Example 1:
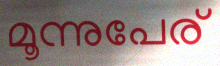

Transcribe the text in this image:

മൂന്നുപേര്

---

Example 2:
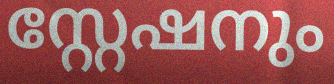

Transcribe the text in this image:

സ്റ്റേഷനും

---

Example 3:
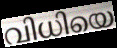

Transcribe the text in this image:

വിധിയെ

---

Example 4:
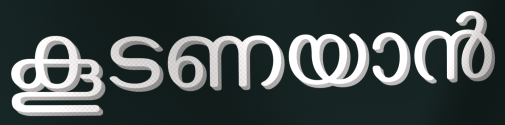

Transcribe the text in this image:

കൂടണയാൻ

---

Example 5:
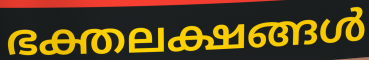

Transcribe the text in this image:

ഭക്തലക്ഷങ്ങൾ